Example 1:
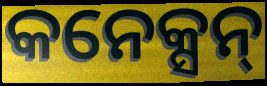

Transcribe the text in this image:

କନେକ୍ସନ୍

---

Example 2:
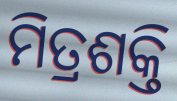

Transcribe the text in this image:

ମିତ୍ରଶକ୍ତି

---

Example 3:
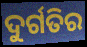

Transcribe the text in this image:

ଦୁର୍ଗତିର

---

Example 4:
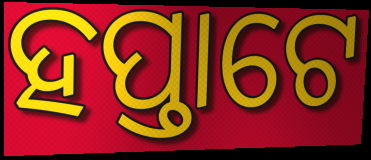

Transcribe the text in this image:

ହପ୍ତାଟେ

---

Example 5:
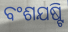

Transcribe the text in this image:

ବଂଶଯଷ୍ଟି